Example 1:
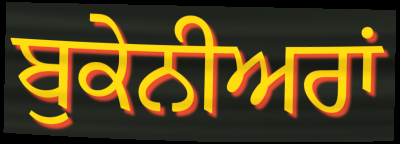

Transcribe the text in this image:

ਬੁਕੇਨੀਅਰਾਂ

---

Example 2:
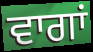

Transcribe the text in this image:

ਵਾਗਾਂ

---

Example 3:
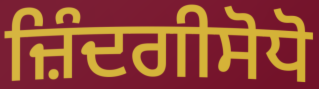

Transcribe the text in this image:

ਜ਼ਿੰਦਗੀਸੋਧੋ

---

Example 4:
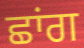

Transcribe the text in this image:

ਛਾਂਗ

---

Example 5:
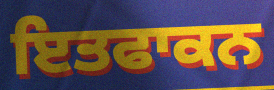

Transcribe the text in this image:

ਇਤਫਾਕਨ